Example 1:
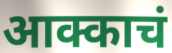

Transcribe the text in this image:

आक्काचं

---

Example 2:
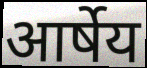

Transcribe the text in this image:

आर्षेय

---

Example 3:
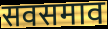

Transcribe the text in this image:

सवसमाव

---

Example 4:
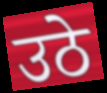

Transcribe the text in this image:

उठे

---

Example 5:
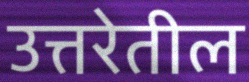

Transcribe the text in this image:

उत्तरेतील